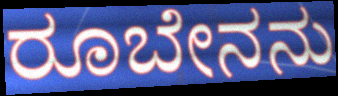
ರೂಬೇನನು